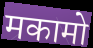
मकामो